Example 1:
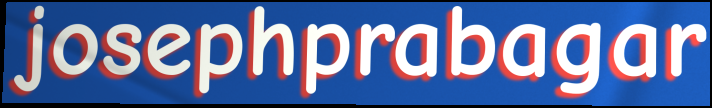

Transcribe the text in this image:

josephprabagar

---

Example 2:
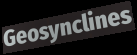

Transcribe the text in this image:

Geosynclines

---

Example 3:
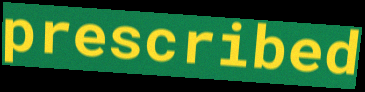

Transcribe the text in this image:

prescribed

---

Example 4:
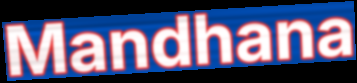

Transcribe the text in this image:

Mandhana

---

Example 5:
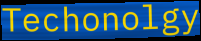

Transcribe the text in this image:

Techonolgy